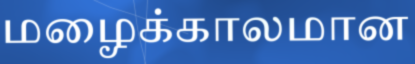
மழைக்காலமான